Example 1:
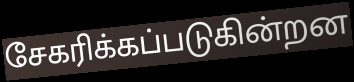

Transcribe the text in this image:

சேகரிக்கப்படுகின்றன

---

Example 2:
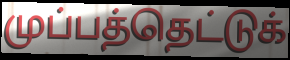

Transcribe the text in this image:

முப்பத்தெட்டுக்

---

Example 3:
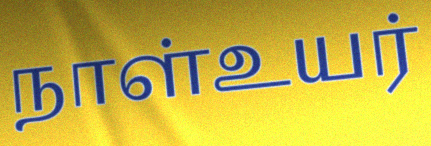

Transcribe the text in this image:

நாள்உயர்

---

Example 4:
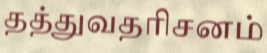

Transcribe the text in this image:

தத்துவதரிசனம்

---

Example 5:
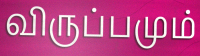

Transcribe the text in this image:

விருப்பமும்